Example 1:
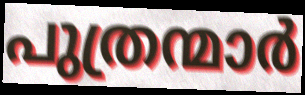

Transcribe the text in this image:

പുത്രന്മാർ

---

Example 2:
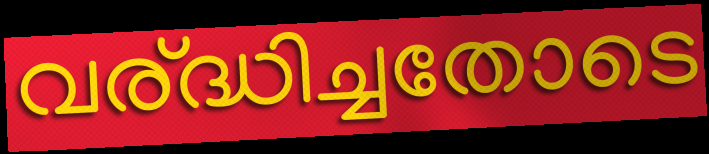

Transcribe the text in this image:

വര്ദ്ധിച്ചതോടെ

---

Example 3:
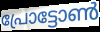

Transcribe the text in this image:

പ്രോട്ടോൺ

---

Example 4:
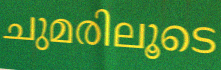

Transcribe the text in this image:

ചുമരിലൂടെ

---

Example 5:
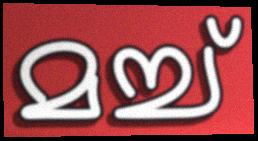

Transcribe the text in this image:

മച്ച്